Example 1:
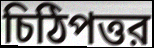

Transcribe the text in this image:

চিঠিপত্তর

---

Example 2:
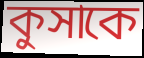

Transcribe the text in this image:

কুসাকে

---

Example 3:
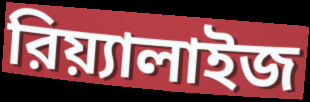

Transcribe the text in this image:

রিয়্যালাইজ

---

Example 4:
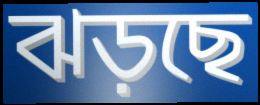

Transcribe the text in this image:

ঝড়ছে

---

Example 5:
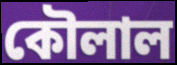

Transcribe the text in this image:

কৌলাল